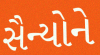
સૈન્યોને